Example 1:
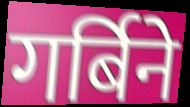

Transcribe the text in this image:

गर्बिने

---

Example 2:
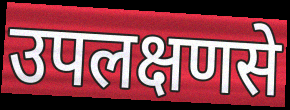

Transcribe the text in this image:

उपलक्षणसे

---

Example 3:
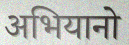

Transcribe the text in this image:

अभियानो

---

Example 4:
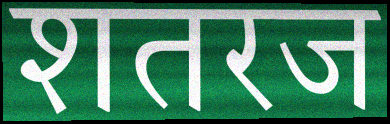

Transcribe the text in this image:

शतरज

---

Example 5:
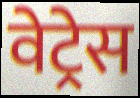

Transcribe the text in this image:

वेट्रेस